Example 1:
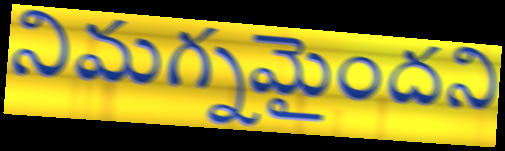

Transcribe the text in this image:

నిమగ్నమైందని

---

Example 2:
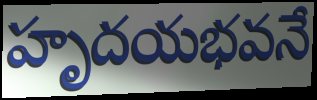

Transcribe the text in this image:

హృదయభవనే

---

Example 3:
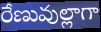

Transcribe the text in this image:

రేణువుల్లాగా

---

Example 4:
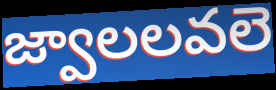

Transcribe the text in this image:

జ్వాలలవలె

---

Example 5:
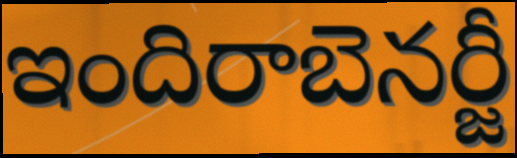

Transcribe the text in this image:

ఇందిరాబెనర్జీ